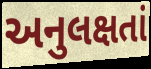
અનુલક્ષતાં